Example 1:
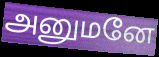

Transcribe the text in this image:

அனுமனே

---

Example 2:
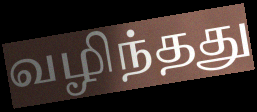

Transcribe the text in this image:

வழிந்தது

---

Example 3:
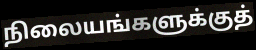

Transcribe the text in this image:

நிலையங்களுக்குத்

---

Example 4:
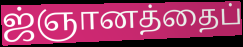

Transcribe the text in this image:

ஜ்ஞானத்தைப்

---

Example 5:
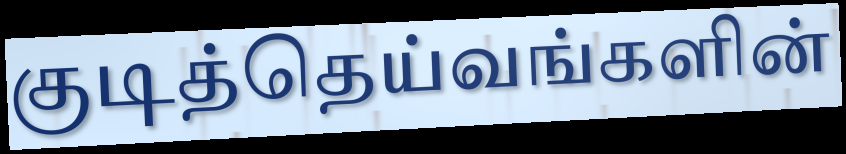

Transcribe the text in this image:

குடித்தெய்வங்களின்